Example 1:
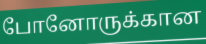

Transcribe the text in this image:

போனோருக்கான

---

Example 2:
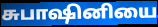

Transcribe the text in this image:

சுபாஷினியை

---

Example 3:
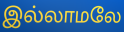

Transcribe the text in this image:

இல்லாமலே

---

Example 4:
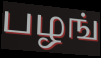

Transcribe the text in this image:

பழங்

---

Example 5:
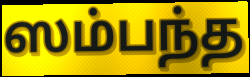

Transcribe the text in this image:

ஸம்பந்த